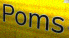
Poms